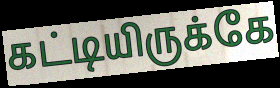
கட்டியிருக்கே